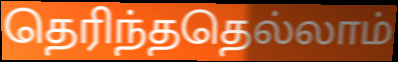
தெரிந்ததெல்லாம்